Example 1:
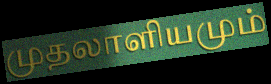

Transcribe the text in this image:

முதலாளியமும்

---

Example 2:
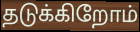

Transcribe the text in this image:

தடுக்கிறோம்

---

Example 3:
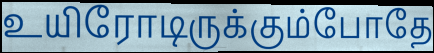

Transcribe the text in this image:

உயிரோடிருக்கும்போதே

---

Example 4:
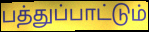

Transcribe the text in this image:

பத்துப்பாட்டும்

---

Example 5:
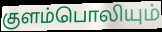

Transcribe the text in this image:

குளம்பொலியும்